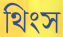
থিংস